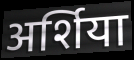
अर्शिया